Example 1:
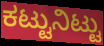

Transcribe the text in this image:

ಕಟ್ಟುನಿಟ್ಟು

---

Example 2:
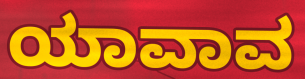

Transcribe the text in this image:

ಯಾವಾವ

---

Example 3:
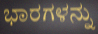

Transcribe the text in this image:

ಭಾರಗಳನ್ನು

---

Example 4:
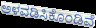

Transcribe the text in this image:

ಅಳವಡಿಸಿಕೊಂಡಿವೆ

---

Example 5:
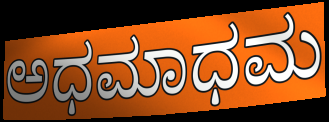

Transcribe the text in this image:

ಅಧಮಾಧಮ